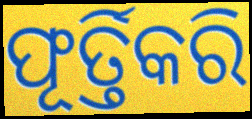
ଫୂର୍ତ୍ତିକରି